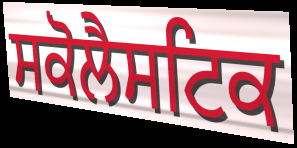
ਸਕੋਲੈਸਟਿਕ